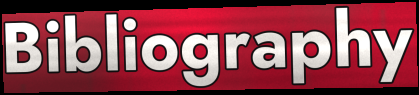
Bibliography